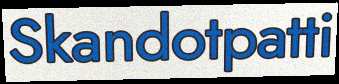
Skandotpatti